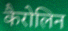
कैरोलिन